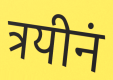
त्रयीनं